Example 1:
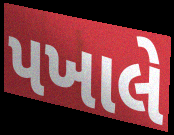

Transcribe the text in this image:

પખાલે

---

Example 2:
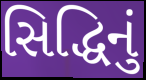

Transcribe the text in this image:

સિદ્ધિનું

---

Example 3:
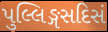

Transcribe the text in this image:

પુલ્લિઙ્ગસદિસં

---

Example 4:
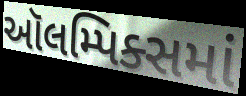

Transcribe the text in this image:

ઑલમ્પિક્સમાં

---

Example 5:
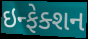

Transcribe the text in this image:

ઇન્ફેક્શન